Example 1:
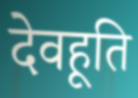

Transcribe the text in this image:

देवहूति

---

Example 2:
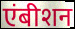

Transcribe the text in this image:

एंबीशन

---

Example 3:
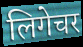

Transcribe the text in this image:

लिगेचर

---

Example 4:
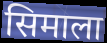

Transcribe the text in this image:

सिमाला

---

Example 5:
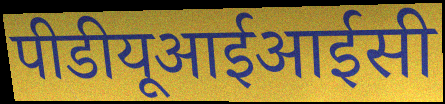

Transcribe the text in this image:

पीडीयूआईआईसी